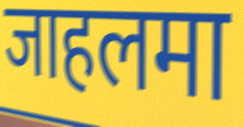
जाहलमा